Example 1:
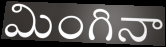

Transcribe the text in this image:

మింగినా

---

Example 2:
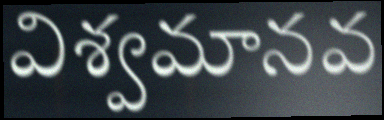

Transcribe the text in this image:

విశ్వమానవ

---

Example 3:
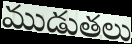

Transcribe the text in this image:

ముడుతలు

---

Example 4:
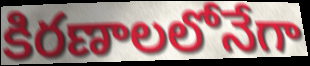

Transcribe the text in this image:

కిరణాలలోనేగా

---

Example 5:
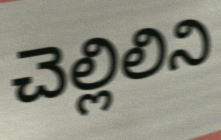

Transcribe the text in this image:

చెల్లిలిని